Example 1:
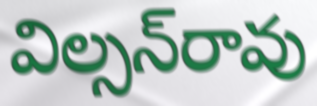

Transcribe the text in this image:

విల్సన్‌రావు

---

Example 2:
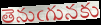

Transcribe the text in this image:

తెనుఁగునకు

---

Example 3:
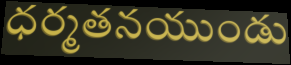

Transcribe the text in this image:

ధర్మతనయుండు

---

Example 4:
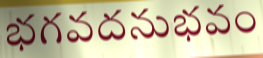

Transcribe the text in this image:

భగవదనుభవం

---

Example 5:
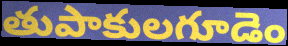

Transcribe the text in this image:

తుపాకులగూడెం